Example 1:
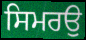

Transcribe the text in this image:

ਸਿਮਰਉ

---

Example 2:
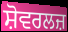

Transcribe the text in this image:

ਸ਼ੋਵਰਲਜ਼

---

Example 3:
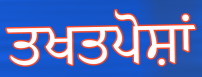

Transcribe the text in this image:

ਤਖਤਪੋਸ਼ਾਂ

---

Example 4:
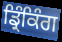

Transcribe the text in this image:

ਡ੍ਰਿੰਕਿੰਗ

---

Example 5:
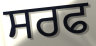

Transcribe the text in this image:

ਸਰਫ